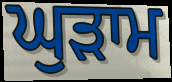
ਘੁੜਾਮ